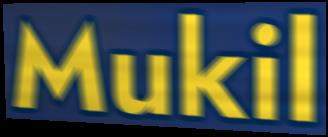
Mukil